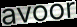
avoor